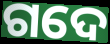
ଗଦେ